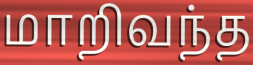
மாறிவந்த